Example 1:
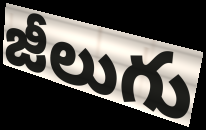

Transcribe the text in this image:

జీలుగు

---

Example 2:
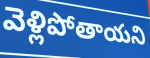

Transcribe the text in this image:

వెళ్లిపోతాయని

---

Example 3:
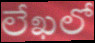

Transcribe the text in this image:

లేఖలో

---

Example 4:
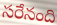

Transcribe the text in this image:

సరేనంది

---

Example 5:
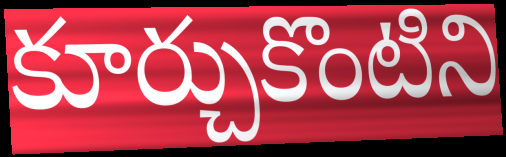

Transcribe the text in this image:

కూర్చుకొంటిని